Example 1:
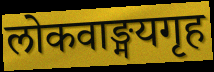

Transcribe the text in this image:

लोकवाङ्मयगृह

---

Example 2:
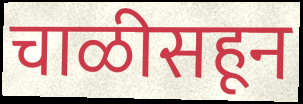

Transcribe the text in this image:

चाळीसहून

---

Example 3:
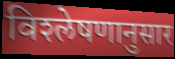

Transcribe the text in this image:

विश्लेषणानुसार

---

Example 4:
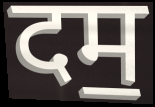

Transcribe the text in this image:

दम॒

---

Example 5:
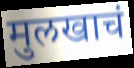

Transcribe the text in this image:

मुलखाचं